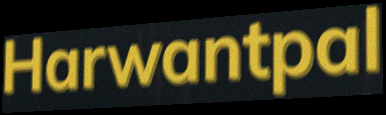
Harwantpal